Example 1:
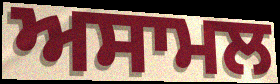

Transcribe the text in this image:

ਅਸਾਮਲ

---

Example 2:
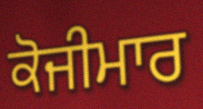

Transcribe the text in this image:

ਕੋਜੀਮਾਰ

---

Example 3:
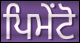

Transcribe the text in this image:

ਪਿਮੇਂਟੋ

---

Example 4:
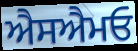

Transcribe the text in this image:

ਐਸਐਮਓ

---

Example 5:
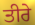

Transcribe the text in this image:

ਤੀਰੇ